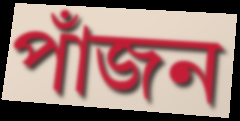
পাঁজন